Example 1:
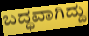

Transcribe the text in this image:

ಬದ್ಧವಾಗಿದ್ದು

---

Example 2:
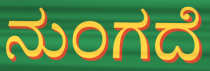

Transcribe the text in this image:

ನುಂಗದೆ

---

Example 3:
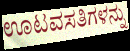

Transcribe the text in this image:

ಊಟವಸತಿಗಳನ್ನು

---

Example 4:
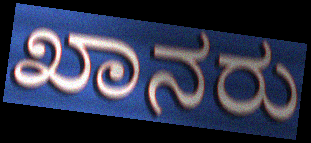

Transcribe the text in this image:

ಖಾನರು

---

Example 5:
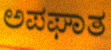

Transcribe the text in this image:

ಅಪಘಾತ